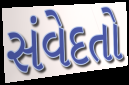
સંવેદતો